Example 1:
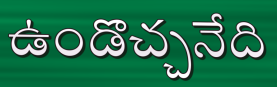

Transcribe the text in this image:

ఉండొచ్చనేది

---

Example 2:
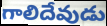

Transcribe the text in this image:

గాలిదేవుడు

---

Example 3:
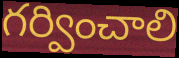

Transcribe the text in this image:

గర్వించాలి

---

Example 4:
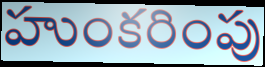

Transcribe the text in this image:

హుంకరింపు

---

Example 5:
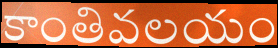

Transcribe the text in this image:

కాంతివలయం